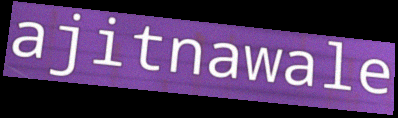
ajitnawale